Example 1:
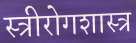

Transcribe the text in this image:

स्त्रीरोगशास्त्र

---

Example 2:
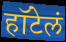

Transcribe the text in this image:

हॉटेलं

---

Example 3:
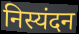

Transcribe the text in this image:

निस्यंदन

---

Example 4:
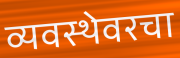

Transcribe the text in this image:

व्यवस्थेवरचा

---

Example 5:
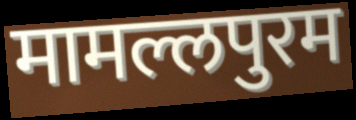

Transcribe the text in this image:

मामल्लपुरम